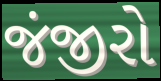
જંજીરો